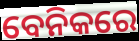
ବେନିକରେ